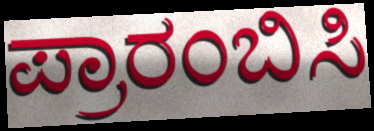
ಪ್ರಾರಂಬಿಸಿ